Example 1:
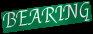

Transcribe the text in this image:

BEARING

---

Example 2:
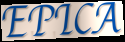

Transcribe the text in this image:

EPICA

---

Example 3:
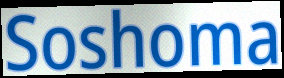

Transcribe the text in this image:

Soshoma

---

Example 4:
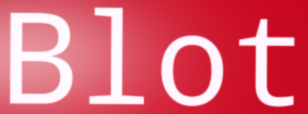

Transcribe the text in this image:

Blot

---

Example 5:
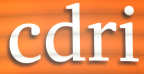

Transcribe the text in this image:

cdri